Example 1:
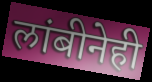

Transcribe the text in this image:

लांबीनेही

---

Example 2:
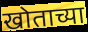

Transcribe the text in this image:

खोताच्या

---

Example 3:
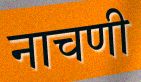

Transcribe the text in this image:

नाचणी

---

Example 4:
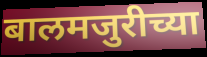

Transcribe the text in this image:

बालमजुरीच्या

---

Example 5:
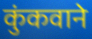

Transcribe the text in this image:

कुंकवाने